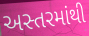
અસ્તરમાંથી